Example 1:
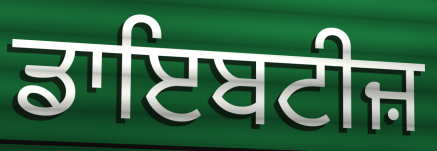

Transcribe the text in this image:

ਡਾਇਬਟੀਜ਼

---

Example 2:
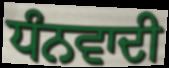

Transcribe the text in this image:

ਧੰਨਵਾਦੀ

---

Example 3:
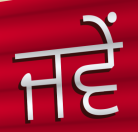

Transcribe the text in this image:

ਜਵੇਂ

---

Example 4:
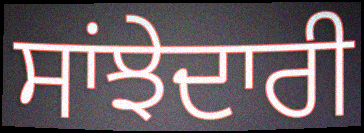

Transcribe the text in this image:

ਸਾਂਝੇਦਾਰੀ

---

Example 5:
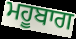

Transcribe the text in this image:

ਮਹੂਬਾਗ